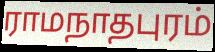
ராமநாதபுரம்